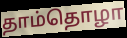
தாம்தொழா